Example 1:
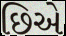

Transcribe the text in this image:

છિએ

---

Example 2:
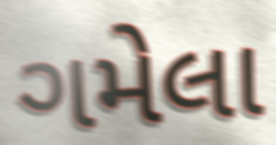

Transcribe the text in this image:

ગમેલા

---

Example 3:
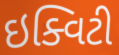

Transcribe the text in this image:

ઇક્વિટી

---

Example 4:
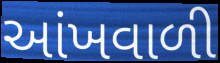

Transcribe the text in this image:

આંખવાળી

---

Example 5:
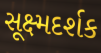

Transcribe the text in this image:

સૂક્ષ્મદર્શક